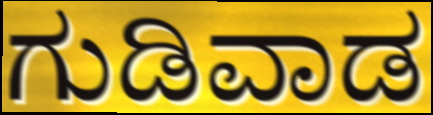
ಗುಡಿವಾಡ